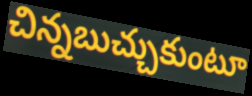
చిన్నబుచ్చుకుంటూ